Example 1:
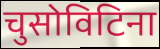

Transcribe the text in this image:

चुसोविटिना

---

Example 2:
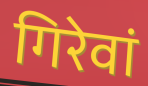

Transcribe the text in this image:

गिरेवां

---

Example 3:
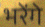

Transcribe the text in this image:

भरेंगे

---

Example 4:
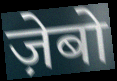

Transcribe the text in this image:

ज़ेबो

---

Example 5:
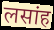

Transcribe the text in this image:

लसांह